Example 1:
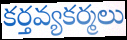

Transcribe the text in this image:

కర్తవ్యకర్మలు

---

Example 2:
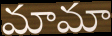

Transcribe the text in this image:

మామా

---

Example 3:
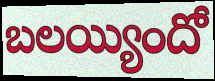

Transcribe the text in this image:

బలయ్యిందో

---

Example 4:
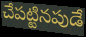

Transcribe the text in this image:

చేపట్టినపుడే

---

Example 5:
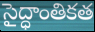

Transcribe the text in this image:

సైద్ధాంతికత